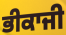
ਭੀਕਾਜੀ